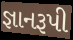
જ્ઞાનરૂપી